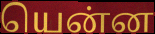
யென்ன